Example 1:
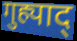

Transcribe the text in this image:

गुह्याद्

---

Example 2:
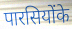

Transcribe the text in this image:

पारसियोंके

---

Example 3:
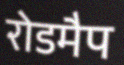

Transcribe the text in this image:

रोडमैप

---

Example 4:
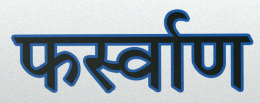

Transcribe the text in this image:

फर्स्वाण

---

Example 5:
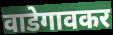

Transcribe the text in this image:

वाडेगावकर